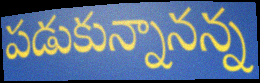
పడుకున్నానన్న